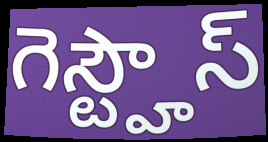
గెస్ట్హౌస్